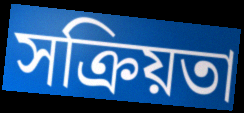
সক্ৰিয়তা